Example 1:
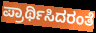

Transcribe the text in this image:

ಪ್ರಾರ್ಥಿಸಿದರಂತೆ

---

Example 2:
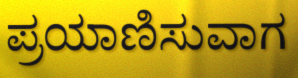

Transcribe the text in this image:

ಪ್ರಯಾಣಿಸುವಾಗ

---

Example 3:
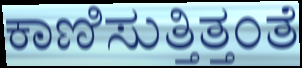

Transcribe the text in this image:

ಕಾಣಿಸುತ್ತಿತ್ತಂತೆ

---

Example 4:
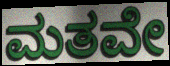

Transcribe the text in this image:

ಮತವೇ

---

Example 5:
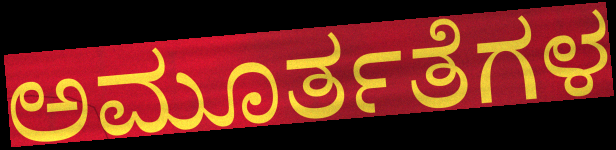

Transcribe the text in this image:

ಅಮೂರ್ತತೆಗಳ